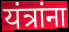
यंत्रांना